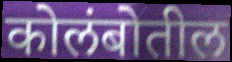
कोलंबोतील